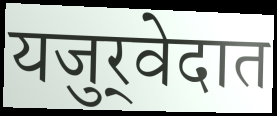
यजुर्वेदात